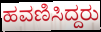
ಹವಣಿಸಿದ್ದರು